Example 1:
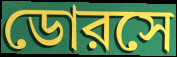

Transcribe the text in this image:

ডোরসে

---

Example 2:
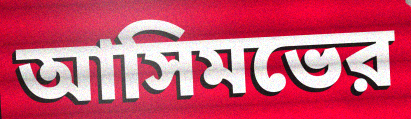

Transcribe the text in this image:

আসিমভের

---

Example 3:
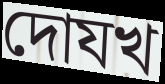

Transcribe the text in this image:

দোযখ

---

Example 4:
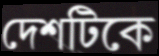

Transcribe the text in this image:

দেশটিকে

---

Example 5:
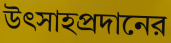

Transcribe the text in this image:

উৎসাহপ্রদানের